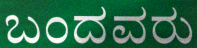
ಬಂದವರು